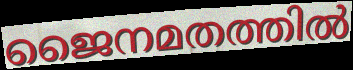
ജൈനമതത്തിൽ